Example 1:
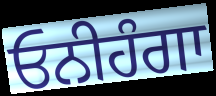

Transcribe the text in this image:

ਓਨੀਹੰਗਾ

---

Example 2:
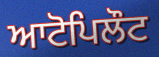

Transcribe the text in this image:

ਆਟੋਪਿਲੌਟ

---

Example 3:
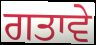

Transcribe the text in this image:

ਗਤਾਵੇ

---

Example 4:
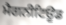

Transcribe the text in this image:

ਮੈਗਨੀਟਿਊਡ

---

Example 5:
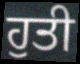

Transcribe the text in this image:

ਹੁਤੀ